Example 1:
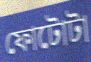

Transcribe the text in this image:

ফোটোটা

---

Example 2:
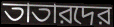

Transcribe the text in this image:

তাতারদের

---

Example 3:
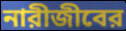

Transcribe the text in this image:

নারীজীবের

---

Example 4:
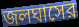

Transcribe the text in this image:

জলঘাসের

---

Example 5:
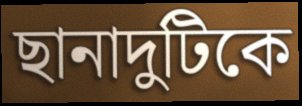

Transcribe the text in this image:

ছানাদুটিকে